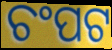
ଚଂପଟ